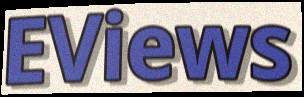
EViews